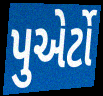
પુએર્ટો